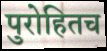
पुरोहितच